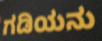
ಗಡಿಯನು